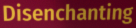
Disenchanting